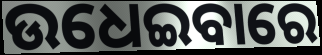
ଉଧେଇବାରେ